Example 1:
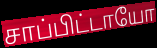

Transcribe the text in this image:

சாப்பிட்டாயோ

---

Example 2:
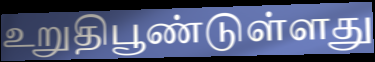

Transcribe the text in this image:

உறுதிபூண்டுள்ளது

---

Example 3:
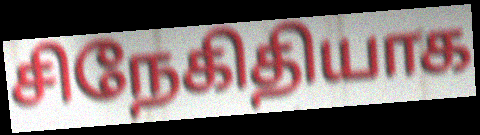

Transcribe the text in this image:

சிநேகிதியாக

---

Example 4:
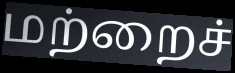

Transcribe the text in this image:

மற்றைச்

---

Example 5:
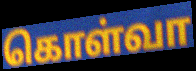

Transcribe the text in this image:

கொள்வா